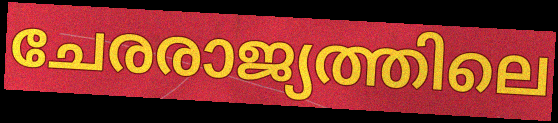
ചേരരാജ്യത്തിലെ